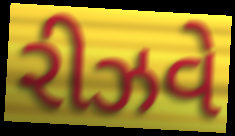
રીઝવે